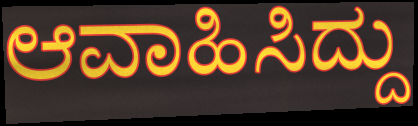
ಆವಾಹಿಸಿದ್ದು